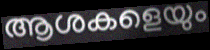
ആശകളെയും